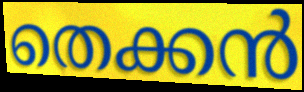
തെക്കൻ